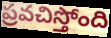
ప్రవచిస్తోంది